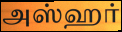
அஸ்ஹர்